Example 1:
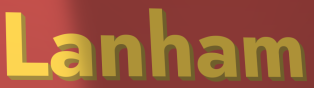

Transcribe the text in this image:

Lanham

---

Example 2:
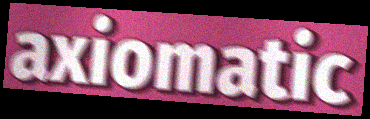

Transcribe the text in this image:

axiomatic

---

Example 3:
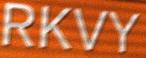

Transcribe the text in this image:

RKVY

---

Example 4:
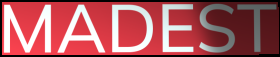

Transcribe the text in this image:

MADEST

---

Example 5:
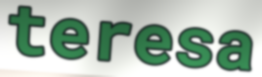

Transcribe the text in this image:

teresa